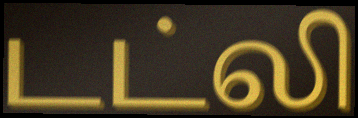
டட்லி